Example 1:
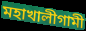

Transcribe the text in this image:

মহাখালীগামী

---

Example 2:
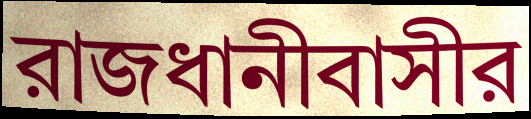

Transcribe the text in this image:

রাজধানীবাসীর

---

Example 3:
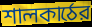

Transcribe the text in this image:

শালকাঠের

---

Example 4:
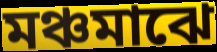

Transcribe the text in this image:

মঞ্চমাঝে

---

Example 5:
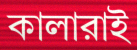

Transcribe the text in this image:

কালারাই